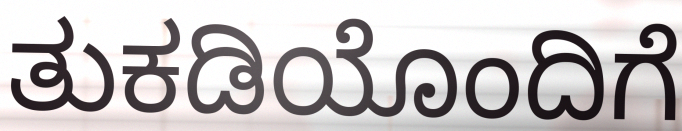
ತುಕಡಿಯೊಂದಿಗೆ